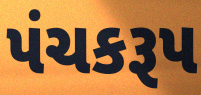
પંચકરૂપ